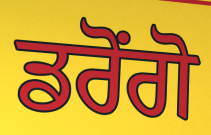
ਡਰੋਂਗੋ